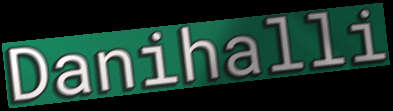
Danihalli